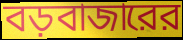
বড়বাজারের